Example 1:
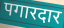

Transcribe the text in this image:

पगारदार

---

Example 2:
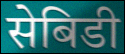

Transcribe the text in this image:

सेबिडी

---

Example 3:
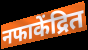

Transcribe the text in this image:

नफाकेंद्रित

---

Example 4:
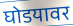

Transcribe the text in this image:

घोडयावर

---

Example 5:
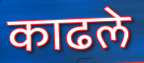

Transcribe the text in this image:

काढले